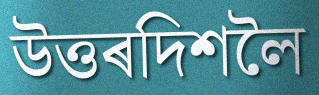
উত্তৰদিশলৈ